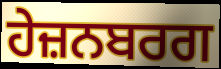
ਹੇਜ਼ਨਬਰਗ